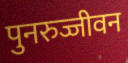
पुनरुज्जीवन